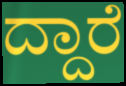
ದ್ದಾರೆ